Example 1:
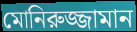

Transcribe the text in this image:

মোনিরুজ্জামান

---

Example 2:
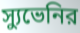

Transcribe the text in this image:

স্যুভেনির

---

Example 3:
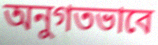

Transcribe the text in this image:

অনুগতভাবে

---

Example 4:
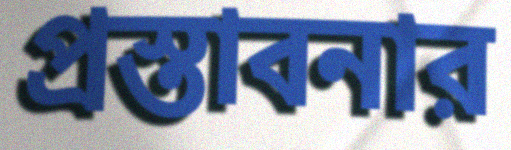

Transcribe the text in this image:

প্রস্তাবনার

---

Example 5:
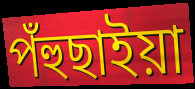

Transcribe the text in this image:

পঁহুছাইয়া